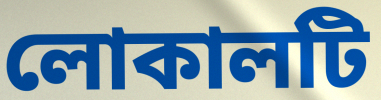
লোকালটি